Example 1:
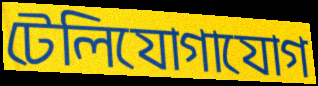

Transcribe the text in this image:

টেলিযোগাযোগ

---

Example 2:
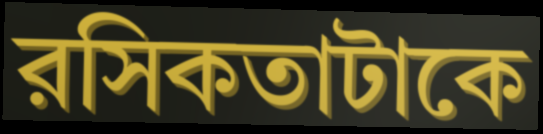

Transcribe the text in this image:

রসিকতাটাকে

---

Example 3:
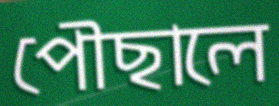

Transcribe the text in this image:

পৌছালে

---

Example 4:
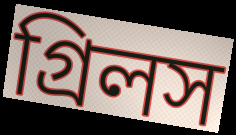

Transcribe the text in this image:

গ্রিলস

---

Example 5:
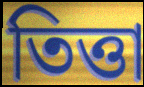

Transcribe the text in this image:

তিত্তা